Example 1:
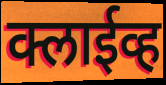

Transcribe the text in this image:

क्लाईव्ह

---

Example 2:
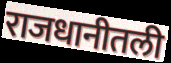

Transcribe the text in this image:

राजधानीतली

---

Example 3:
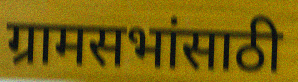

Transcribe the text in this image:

ग्रामसभांसाठी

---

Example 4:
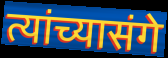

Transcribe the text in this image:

त्यांच्यासंगे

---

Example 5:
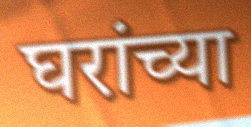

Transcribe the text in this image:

घरांच्या